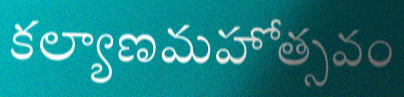
కల్యాణమహోత్సవం